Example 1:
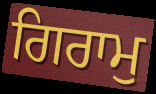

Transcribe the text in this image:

ਗਿਰਾਮੁ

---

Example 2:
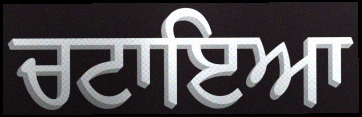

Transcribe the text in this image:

ਚਟਾਇਆ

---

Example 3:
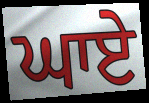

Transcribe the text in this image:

ਘਾਏ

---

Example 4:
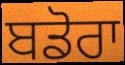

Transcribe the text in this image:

ਬਡੋਰਾ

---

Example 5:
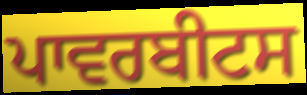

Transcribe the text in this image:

ਪਾਵਰਬੀਟਸ